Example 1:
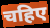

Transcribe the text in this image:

चहिए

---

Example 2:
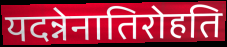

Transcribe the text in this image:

यदन्नेनातिरोहति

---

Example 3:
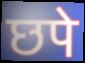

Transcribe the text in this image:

छपे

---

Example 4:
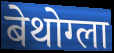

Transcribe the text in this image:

बेथोग्ला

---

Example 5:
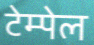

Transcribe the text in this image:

टेम्पेल